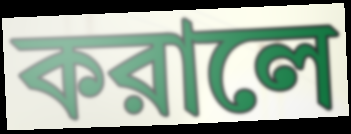
করালে